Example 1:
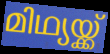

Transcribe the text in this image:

മിഥ്യയ്ക്ക്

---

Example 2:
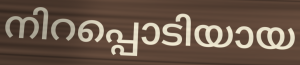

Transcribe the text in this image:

നിറപ്പൊടിയായ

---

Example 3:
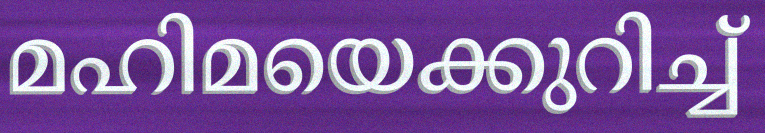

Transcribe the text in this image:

മഹിമയെക്കുറിച്ച്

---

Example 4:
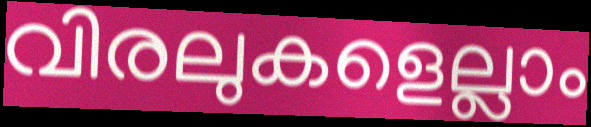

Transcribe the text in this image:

വിരലുകളെല്ലാം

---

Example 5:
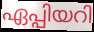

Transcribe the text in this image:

ഏപ്പിയറി